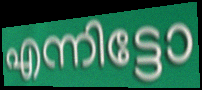
എന്നിട്ടോ